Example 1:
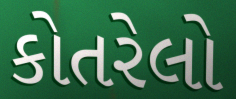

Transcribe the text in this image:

કોતરેલો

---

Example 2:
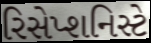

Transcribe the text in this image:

રિસેપ્શનિસ્ટે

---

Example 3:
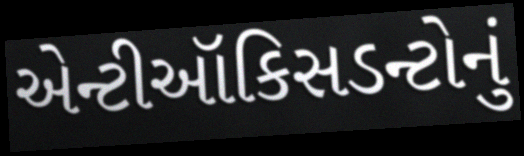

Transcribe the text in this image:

એન્ટીઑકિસડન્ટોનું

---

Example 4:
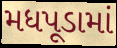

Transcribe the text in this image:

મધપૂડામાં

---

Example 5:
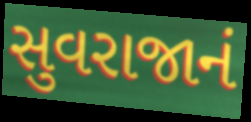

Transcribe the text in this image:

સુવરાજાનં